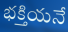
భక్తియనే